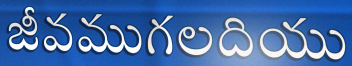
జీవముగలదియు